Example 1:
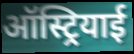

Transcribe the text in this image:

ऑस्ट्रियाई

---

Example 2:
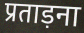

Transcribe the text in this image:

प्रताड़ना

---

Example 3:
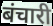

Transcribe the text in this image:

बंचारी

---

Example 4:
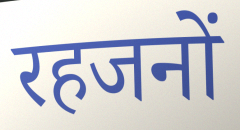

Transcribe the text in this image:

रहजनों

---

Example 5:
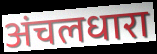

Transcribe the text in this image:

अंचलधारा